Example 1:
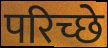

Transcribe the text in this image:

परिच्छे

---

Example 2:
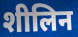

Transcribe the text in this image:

शीलिन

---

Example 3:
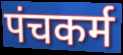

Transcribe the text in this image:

पंचकर्म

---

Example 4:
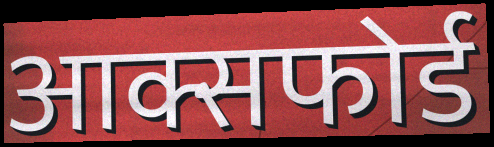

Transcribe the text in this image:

आक्सफोर्ड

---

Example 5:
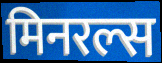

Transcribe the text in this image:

मिनरल्स